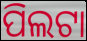
ପିଲଟା